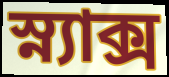
স্ন্যাক্স